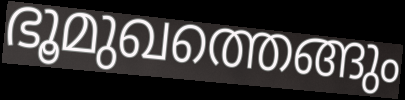
ഭൂമുഖത്തെങ്ങും